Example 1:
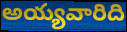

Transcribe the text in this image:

అయ్యవారిది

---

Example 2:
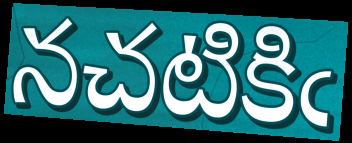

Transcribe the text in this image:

నచటికిఁ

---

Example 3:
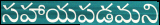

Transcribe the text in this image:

సహాయపడమని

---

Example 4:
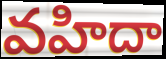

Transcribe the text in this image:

వహిదా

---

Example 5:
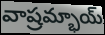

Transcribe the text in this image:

వాష్రమ్భాయ్